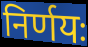
निर्णयः